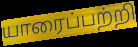
யாரைப்பற்றி